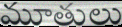
మూతులు